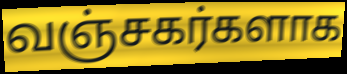
வஞ்சகர்களாக